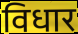
विधार